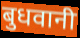
बुधवानी